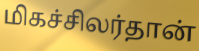
மிகச்சிலர்தான்